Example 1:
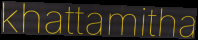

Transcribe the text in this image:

khattamitha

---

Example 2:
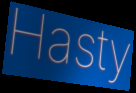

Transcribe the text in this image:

Hasty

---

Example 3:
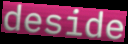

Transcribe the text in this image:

deside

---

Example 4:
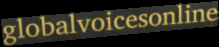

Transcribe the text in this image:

globalvoicesonline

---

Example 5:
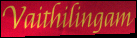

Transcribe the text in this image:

Vaithilingam